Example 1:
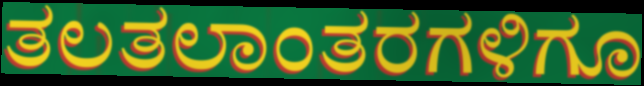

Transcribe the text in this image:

ತಲತಲಾಂತರಗಳಿಗೂ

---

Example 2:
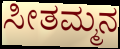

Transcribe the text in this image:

ಸೀತಮ್ಮನ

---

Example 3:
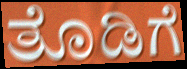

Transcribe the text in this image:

ತೊಡಿಗೆ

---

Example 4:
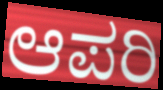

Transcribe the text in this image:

ಆಪರಿ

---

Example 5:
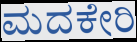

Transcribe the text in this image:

ಮದಕೇರಿ